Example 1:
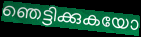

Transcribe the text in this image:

ഞെട്ടിക്കുകയോ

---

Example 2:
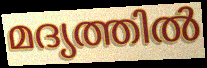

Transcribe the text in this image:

മദ്യത്തിൽ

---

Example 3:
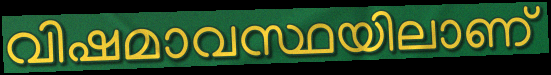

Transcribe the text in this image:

വിഷമാവസ്ഥയിലാണ്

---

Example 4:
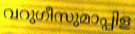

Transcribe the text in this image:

വറുഗീസുമാപ്പിള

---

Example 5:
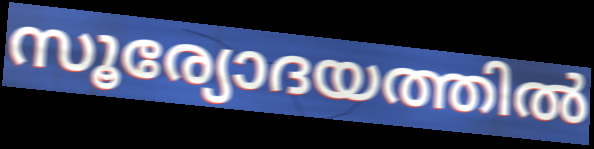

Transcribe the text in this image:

സൂര്യോദയത്തിൽ